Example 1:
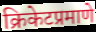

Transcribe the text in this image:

क्रिकेटप्रमाणे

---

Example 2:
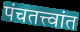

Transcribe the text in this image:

पंचतत्त्वांत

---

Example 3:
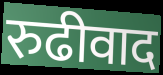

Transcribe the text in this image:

रुढीवाद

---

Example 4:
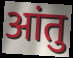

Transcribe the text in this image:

आंतु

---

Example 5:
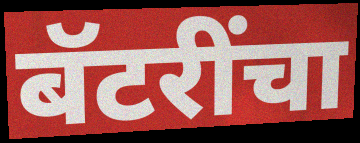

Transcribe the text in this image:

बॅटरींचा